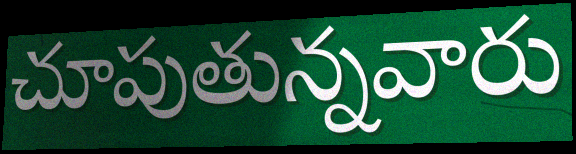
చూపుతున్నవారు